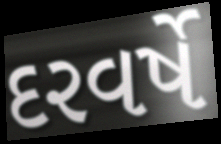
દરવર્ષે